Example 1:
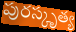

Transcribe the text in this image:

పురస్కృత్య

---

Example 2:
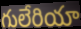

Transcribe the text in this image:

గులేరియా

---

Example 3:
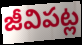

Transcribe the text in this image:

జీవిపట్ల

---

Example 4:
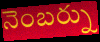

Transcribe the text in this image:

నెంబర్ను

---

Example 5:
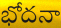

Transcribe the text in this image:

భోదనా